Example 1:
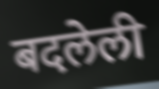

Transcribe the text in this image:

बदलेली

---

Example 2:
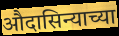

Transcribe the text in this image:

औदासिन्याच्या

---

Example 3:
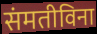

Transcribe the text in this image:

संमतीविना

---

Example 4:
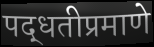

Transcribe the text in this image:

पद्धतीप्रमाणे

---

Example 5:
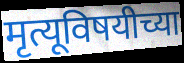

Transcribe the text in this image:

मृत्यूविषयीच्या